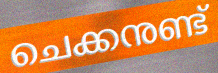
ചെക്കനുണ്ട്